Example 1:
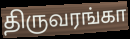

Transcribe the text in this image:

திருவரங்கா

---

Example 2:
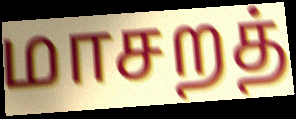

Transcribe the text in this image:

மாசறத்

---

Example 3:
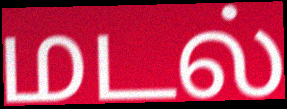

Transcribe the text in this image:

மடல்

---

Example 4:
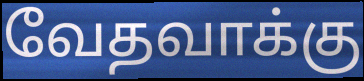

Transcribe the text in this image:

வேதவாக்கு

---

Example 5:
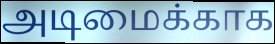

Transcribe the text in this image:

அடிமைக்காக